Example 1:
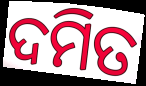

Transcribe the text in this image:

ଦମିତ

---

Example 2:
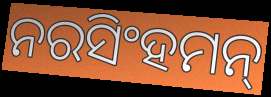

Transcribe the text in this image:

ନରସିଂହମନ୍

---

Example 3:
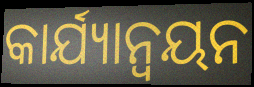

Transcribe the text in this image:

କାର୍ଯ୍ୟାନ୍ଵୟନ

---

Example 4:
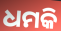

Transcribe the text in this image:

ଧମକି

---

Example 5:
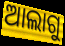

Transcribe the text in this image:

ଆଲାଗୁ